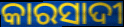
କାରସାଦୀ